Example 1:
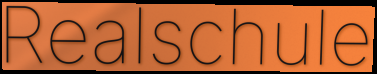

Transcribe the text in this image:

Realschule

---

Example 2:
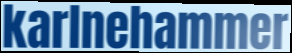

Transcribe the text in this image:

karlnehammer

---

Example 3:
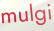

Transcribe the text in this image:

mulgi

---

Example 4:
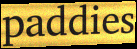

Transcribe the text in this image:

paddies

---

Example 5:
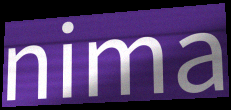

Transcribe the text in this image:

nima